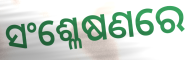
ସଂଶ୍ଳେଷଣରେ